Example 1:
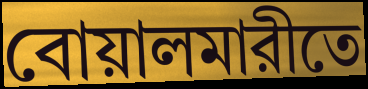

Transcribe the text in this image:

বোয়ালমারীতে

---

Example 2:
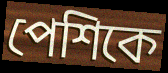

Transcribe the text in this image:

পেশিকে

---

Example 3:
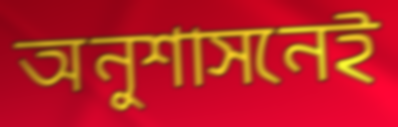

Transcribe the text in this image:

অনুশাসনেই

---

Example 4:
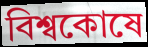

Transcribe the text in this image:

বিশ্বকোষে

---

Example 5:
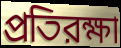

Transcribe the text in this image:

প্রতিরক্ষা